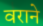
वराने